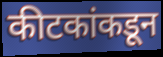
कीटकांकडून